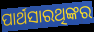
ପାର୍ଥସାରଥିଙ୍କର